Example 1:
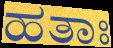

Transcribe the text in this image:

ಹತಾಃ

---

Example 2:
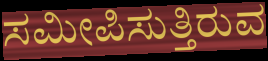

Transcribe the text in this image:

ಸಮೀಪಿಸುತ್ತಿರುವ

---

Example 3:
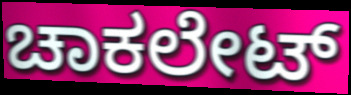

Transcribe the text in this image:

ಚಾಕಲೇಟ್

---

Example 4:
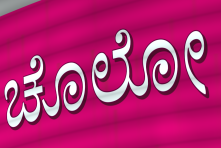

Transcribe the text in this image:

ಚೊಲೋ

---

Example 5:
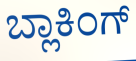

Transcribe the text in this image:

ಬ್ಲಾಕಿಂಗ್